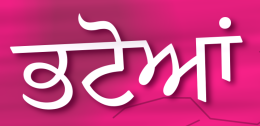
ਭਟੋਆਂ